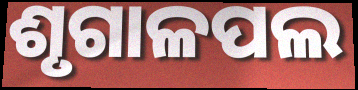
ଶୃଗାଳପଲ